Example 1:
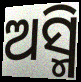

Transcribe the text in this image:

ଅସ୍ମି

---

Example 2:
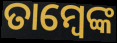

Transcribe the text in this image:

ତାମ୍ବେଙ୍କ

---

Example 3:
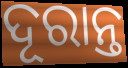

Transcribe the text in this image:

ଦୂରାନ୍ତ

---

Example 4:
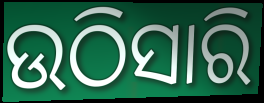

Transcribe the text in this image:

ଉଠିସାରି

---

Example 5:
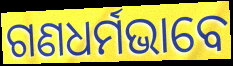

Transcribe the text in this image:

ଗଣଧର୍ମଭାବେ